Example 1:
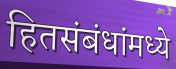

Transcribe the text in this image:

हितसंबंधांमध्ये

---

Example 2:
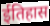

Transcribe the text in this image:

ईतिहास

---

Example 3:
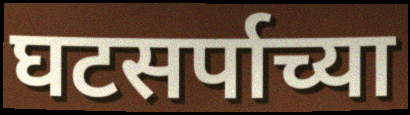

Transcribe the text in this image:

घटसर्पाच्या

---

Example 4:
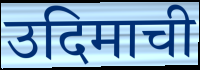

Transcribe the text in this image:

उदिमाची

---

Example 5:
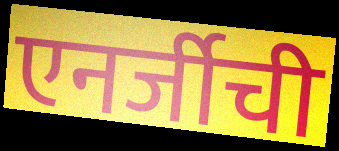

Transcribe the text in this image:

एनर्जीची